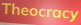
Theocracy